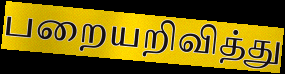
பறையறிவித்து